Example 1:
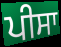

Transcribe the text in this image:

ਪੀਸਾ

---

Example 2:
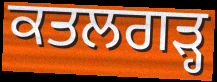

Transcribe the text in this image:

ਕਤਲਗੜ੍ਹ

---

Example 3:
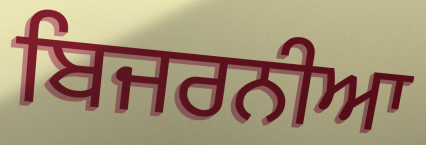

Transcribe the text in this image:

ਬਿਜਰਨੀਆ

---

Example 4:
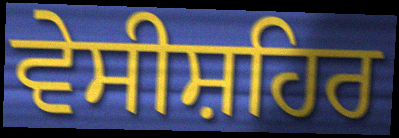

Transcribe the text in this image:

ਵੇਸੀਸ਼ਹਿਰ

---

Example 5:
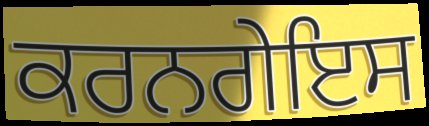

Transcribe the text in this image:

ਕਰਨਗੇਇਸ